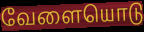
வேளையொடு